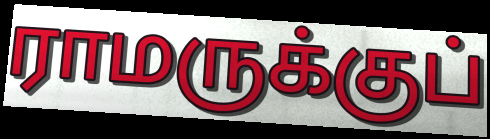
ராமருக்குப்